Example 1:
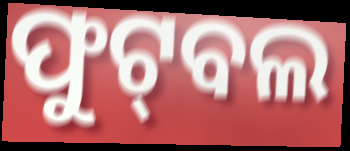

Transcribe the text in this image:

ଫୁଟ୍‌ବଲ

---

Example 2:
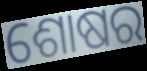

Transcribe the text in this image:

ଶୋଷର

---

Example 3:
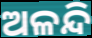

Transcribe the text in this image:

ଅଳନ୍ଦି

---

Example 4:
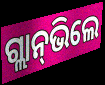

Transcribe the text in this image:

ଗ୍ଲାନ୍‌ଭିଲେ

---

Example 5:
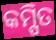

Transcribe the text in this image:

କମ୍ପିତ